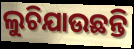
ଲୁଚିଯାଉଛନ୍ତି